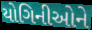
યોગિનીઓને